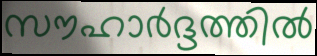
സൗഹാർദ്ദത്തിൽ